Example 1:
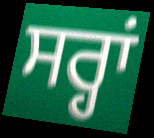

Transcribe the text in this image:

ਸਰ੍ਹਾਂ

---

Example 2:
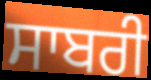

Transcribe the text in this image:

ਸਾਬਰੀ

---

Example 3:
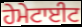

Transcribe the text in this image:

ਹੇਮੇਟਾਈਟ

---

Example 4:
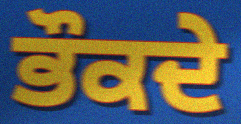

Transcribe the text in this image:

ਭੌਕਦੇ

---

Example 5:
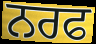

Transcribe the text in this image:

ਨਰਫ